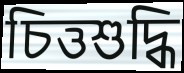
চিত্তশুদ্ধি